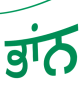
ਭਾਂਨ